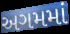
અગમમાં